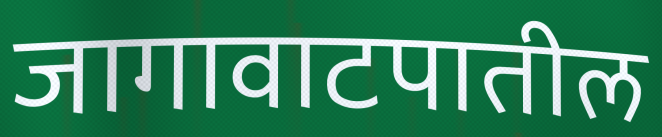
जागावाटपातील